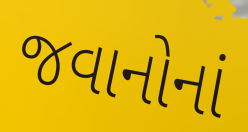
જવાનોનાં